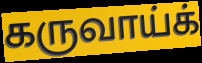
கருவாய்க்